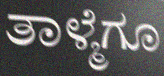
ತಾಳ್ಮೆಗೂ